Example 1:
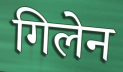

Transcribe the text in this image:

गिलेन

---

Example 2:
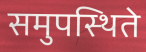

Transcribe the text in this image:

समुपस्थिते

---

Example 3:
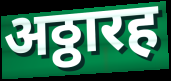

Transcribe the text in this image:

अठ्ठारह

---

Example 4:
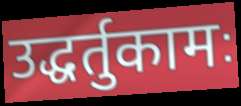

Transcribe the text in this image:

उद्धर्तुकामः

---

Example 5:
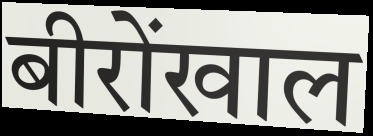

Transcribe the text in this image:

बीरोंखाल